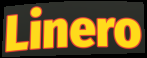
Linero